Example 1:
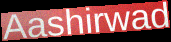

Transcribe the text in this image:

Aashirwad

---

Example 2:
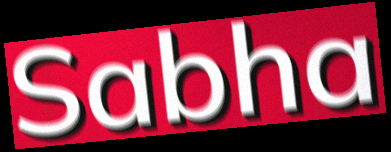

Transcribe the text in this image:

Sabha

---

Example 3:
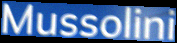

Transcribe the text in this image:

Mussolini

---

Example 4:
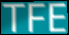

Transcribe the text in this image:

TFE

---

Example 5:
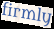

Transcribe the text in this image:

firmly